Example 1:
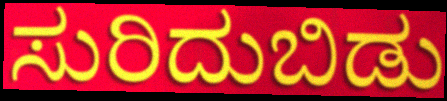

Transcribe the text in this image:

ಸುರಿದುಬಿಡು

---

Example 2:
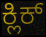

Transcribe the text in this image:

ಕ್ಲಿಕ್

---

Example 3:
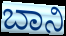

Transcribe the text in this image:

ಬಾನಿ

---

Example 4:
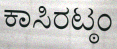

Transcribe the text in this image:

ಕಾಸಿರಟ್ಠಂ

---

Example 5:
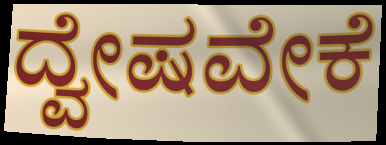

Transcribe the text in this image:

ದ್ವೇಷವೇಕೆ